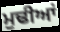
ਮੁਢੀਆਂ